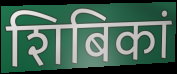
शिबिकां